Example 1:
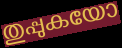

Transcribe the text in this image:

തുപ്പുകയോ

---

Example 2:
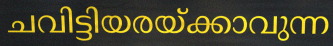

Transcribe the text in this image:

ചവിട്ടിയരയ്ക്കാവുന്ന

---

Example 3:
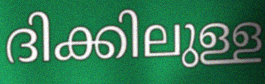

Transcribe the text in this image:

ദിക്കിലുള്ള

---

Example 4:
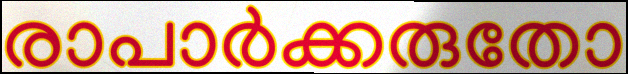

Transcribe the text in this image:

രാപാർക്കരുതോ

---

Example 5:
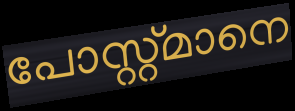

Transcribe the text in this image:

പോസ്റ്റ്മാനെ